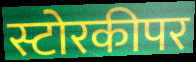
स्टोरकीपर